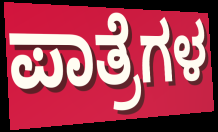
ಪಾತ್ರೆಗಳ